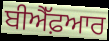
ਬੀਐੱਫ਼ਆਰ